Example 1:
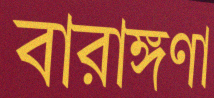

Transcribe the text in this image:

বারাঙ্গণা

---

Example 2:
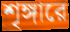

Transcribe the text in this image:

শৃঙ্গারে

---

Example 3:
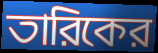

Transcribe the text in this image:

তারিকের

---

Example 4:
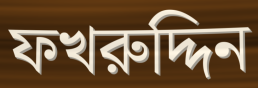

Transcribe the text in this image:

ফখরুদ্দিন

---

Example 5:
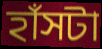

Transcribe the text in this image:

হাঁসটা